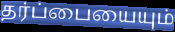
தர்ப்பையையும்